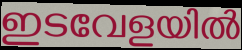
ഇടവേളയിൽ